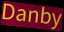
Danby